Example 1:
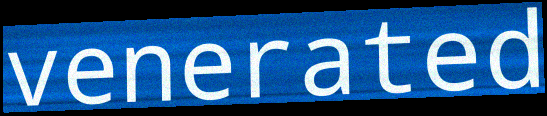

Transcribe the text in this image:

venerated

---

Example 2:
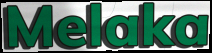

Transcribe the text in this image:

Melaka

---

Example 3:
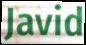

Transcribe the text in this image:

Javid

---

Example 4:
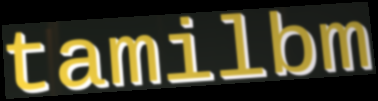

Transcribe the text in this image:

tamilbm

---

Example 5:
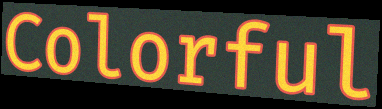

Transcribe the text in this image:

Colorful